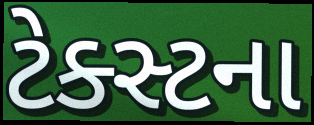
ટેક્સ્ટના